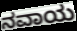
ನವಾಯ